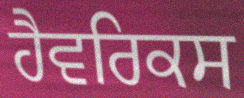
ਹੈਵਰਿਕਸ